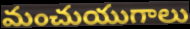
మంచుయుగాలు